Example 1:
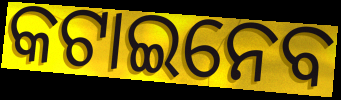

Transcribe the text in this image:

କଟାଇନେବ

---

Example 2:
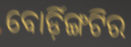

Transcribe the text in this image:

ବୋର୍ଡ଼ିଙ୍ଗଟିର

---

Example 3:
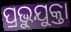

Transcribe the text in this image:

ପ୍ରଭୁଯୁକ୍ତା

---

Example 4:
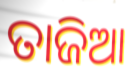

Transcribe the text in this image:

ତାଜିଆ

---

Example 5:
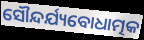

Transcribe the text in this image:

ସୌନ୍ଦର୍ଯ୍ୟବୋଧାତ୍ମକ